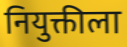
नियुक्तीला